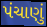
પંચાણું